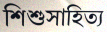
শিশুসাহিত্য